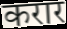
करार